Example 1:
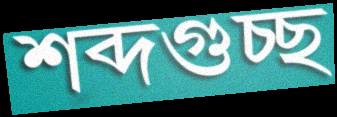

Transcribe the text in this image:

শব্দগুচ্ছ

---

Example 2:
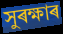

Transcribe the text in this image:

সুৰক্ষাৰ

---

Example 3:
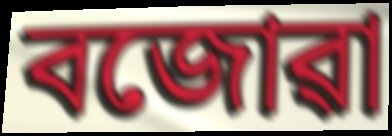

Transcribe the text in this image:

বজোৱা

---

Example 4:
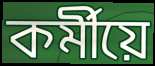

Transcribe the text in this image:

কৰ্মীয়ে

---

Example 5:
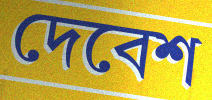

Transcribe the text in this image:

দেবেশ